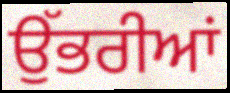
ਉੱਭਰੀਆਂ